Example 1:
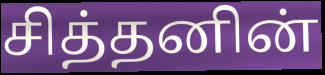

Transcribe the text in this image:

சித்தனின்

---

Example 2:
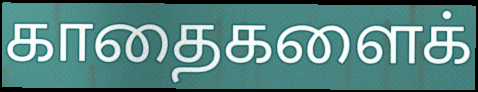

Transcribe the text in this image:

காதைகளைக்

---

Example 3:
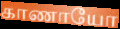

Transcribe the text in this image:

காணாயோ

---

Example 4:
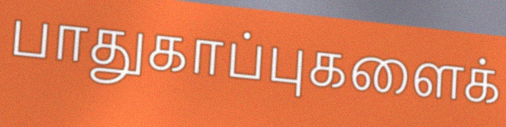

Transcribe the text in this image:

பாதுகாப்புகளைக்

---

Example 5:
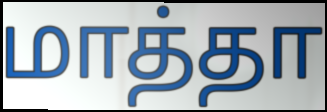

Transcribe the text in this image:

மாத்தா